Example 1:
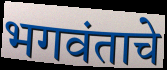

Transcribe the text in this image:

भगवंताचे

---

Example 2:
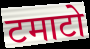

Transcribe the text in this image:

टमाटो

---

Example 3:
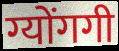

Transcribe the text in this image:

ग्योंगगी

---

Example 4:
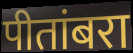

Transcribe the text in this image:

पीतांबरा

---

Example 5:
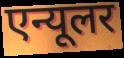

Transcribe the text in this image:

एन्यूलर